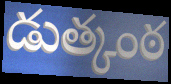
డుత్కంఠ